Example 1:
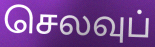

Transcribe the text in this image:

செலவுப்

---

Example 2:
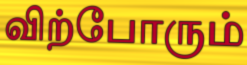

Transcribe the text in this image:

விற்போரும்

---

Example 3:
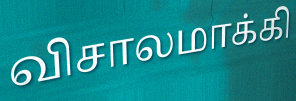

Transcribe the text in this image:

விசாலமாக்கி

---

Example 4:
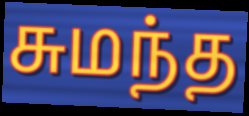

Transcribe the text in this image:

சுமந்த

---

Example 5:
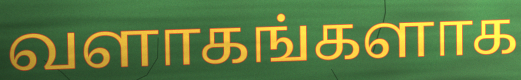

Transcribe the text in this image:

வளாகங்களாக